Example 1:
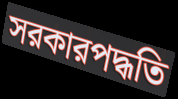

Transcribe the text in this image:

সরকারপদ্ধতি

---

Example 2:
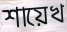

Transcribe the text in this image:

শায়েখ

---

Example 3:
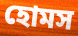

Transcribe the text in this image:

হোমস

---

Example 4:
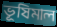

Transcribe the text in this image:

ভূষিমাল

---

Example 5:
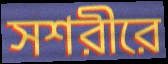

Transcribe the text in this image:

সশরীরে